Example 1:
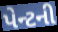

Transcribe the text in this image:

પેન્ટની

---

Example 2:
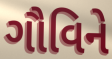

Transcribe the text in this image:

ગૌવિને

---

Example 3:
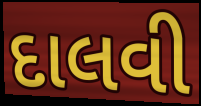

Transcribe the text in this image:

દાલવી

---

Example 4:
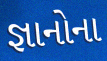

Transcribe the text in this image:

જ્ઞાનોના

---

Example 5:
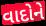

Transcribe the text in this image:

વાદોને